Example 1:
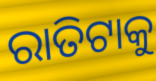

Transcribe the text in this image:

ରାତିଟାକୁ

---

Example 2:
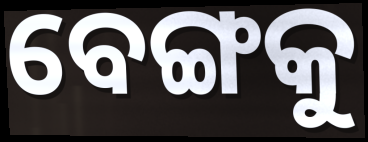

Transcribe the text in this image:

ବେଙ୍ଗକୁ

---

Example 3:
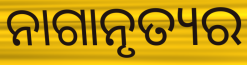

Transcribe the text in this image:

ନାଗାନୃତ୍ୟର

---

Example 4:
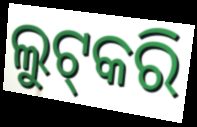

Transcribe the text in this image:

ଲୁଟ୍‍କରି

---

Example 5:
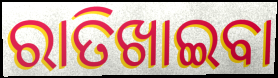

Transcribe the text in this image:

ରାତିଖାଇବା